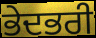
ਭੇਦਭਰੀ